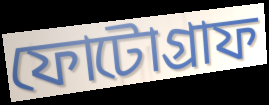
ফোটোগ্রাফ